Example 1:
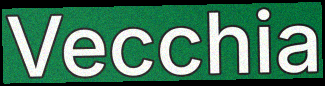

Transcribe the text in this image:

Vecchia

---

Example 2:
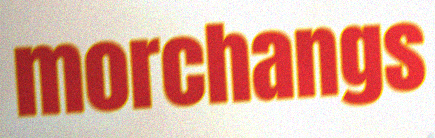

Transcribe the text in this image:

morchangs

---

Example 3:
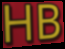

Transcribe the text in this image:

HB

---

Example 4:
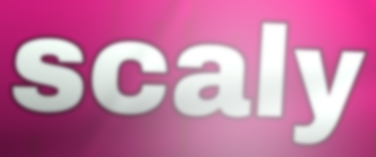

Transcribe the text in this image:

scaly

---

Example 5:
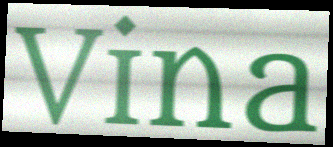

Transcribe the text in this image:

Vina